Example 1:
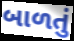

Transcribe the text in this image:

બાળતું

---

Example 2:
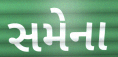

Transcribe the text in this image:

સમેના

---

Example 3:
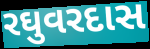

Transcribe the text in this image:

રઘુવરદાસ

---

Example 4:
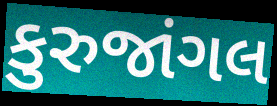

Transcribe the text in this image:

કુરુજાંગલ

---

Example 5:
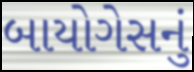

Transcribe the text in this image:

બાયોગેસનું